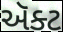
ઍૅક્ટ